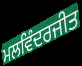
ਮਲਵਿੰਦਰਜੀਤ